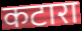
कटारा